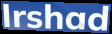
Irshad